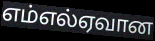
எம்எல்ஏவான